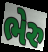
ભેરુ